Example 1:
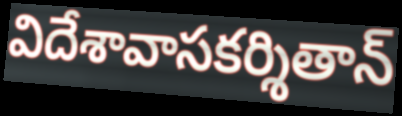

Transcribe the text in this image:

విదేశావాసకర్శితాన్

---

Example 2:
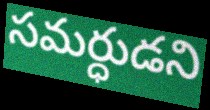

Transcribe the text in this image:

సమర్ధుడని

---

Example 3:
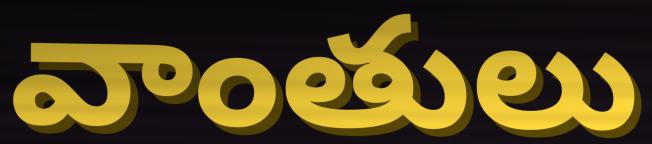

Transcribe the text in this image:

వాంతులు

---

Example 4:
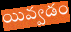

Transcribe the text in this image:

యివ్వడం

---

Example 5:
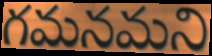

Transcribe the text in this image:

గమనమని